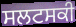
ਸਲਟਸਕੀ